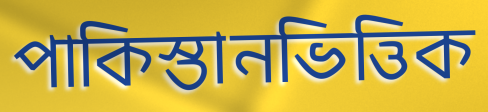
পাকিস্তানভিত্তিক